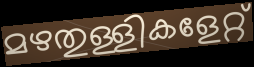
മഴതുള്ളികളേറ്റ്